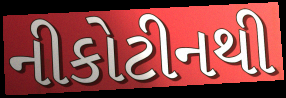
નીકોટીનથી